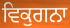
ਵਿਕੁਗਨਾ